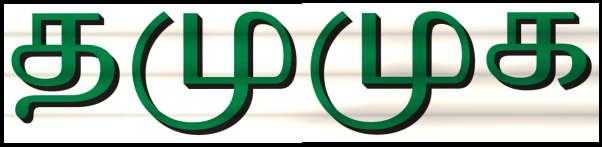
தமுமுக